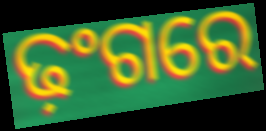
ଢ଼ଂଗରେ